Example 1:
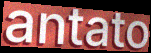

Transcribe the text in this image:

antato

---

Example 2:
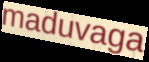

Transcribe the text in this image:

maduvaga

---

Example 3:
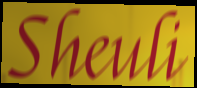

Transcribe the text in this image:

Sheuli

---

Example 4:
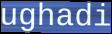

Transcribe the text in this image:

ughadi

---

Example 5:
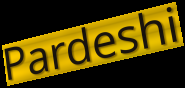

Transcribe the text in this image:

Pardeshi